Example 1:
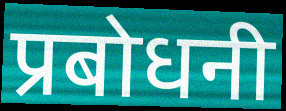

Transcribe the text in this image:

प्रबोधनी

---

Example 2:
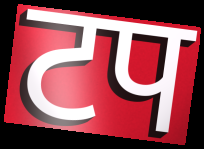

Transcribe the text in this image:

टप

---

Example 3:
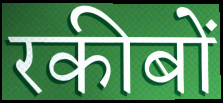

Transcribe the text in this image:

रकीबों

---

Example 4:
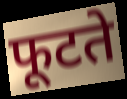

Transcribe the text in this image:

फूटते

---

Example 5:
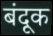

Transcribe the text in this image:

बंदूक